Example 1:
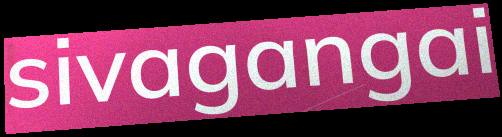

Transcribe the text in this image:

sivagangai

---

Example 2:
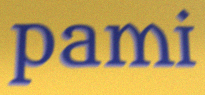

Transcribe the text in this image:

pami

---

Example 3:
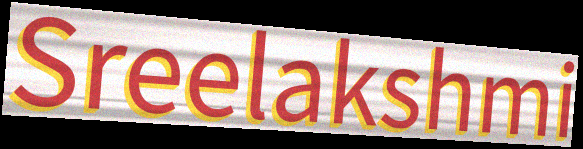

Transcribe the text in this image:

Sreelakshmi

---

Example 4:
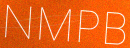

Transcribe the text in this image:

NMPB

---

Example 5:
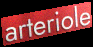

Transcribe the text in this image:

arteriole